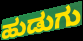
ಹುಡುಗು